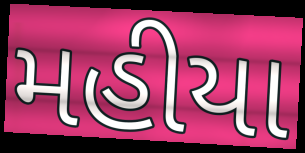
મહીયા